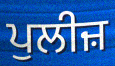
ਪੁਲੀਜ਼